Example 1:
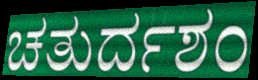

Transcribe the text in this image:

ಚತುರ್ದಶಂ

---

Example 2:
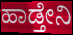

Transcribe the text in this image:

ಹಾಡ್ತೇನಿ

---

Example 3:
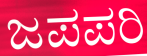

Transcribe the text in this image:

ಜಪಪರಿ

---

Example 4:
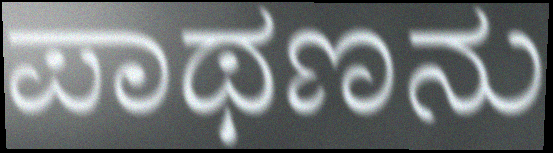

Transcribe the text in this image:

ಪಾಥಣನು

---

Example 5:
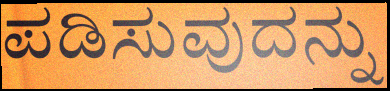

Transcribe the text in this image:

ಪಡಿಸುವುದನ್ನು